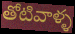
తోటివాళ్ళ